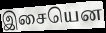
இசையென